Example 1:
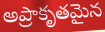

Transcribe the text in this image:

అప్రాకృతమైన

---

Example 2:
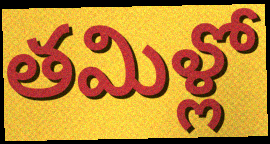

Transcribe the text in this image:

తమిళ్లో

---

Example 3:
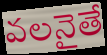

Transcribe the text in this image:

వలనైతే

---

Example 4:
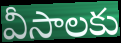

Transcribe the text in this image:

వీసాలకు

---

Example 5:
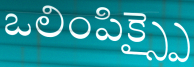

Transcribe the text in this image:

ఒలింపిక్స్పై